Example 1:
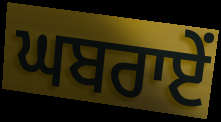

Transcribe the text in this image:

ਘਬਰਾਏਂ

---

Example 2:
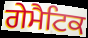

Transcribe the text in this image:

ਗੇਮੈਟਿਕ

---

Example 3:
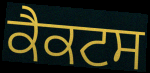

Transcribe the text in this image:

ਕੈਕਟਸ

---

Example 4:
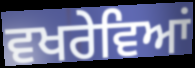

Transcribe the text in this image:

ਵਖਰੇਵਿਆਂ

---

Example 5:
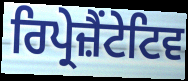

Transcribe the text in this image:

ਰਿਪ੍ਰੇਜ਼ੈਂਟੇਟਿਵ